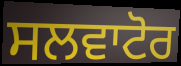
ਸਲਵਾਟੋਰ